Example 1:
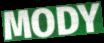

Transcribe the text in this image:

MODY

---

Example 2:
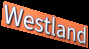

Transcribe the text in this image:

Westland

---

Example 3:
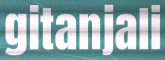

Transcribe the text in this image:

gitanjali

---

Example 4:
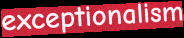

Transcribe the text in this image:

exceptionalism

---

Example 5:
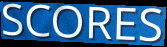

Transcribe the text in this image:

SCORES